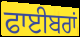
ਫਾਈਬਰਾਂ